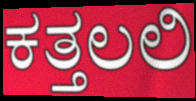
ಕತ್ತಲಲಿ